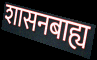
शासनबाह्य